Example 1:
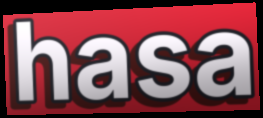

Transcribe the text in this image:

hasa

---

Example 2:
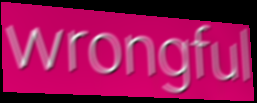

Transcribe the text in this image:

wrongful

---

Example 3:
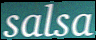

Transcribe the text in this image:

salsa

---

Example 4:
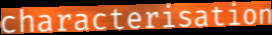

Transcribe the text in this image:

characterisation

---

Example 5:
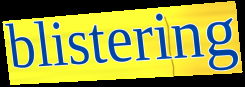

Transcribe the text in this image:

blistering